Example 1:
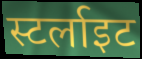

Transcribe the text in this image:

स्टर्लाइट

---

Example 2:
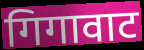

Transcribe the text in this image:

गिगावाट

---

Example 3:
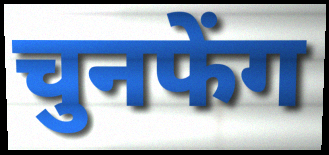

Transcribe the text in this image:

चुनफेंग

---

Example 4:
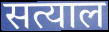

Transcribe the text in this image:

सत्याल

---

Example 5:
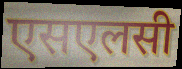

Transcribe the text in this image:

एसएलसी